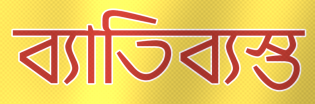
ব্যাতিব্যস্ত